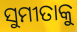
ସୁମୀତାକୁ